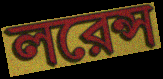
লরেন্স